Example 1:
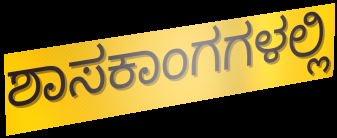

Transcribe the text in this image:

ಶಾಸಕಾಂಗಗಳಲ್ಲಿ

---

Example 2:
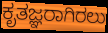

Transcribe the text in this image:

ಕೃತಜ್ಞರಾಗಿರಲು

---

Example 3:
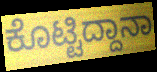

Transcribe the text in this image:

ಕೊಟ್ಟಿದ್ದಾನಾ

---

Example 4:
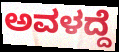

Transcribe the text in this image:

ಅವಳದ್ದೆ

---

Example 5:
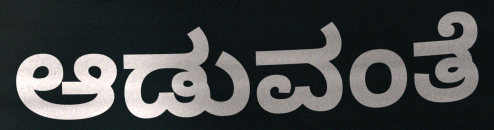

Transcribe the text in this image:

ಆಡುವಂತೆ